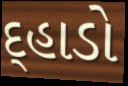
દ્હાડો